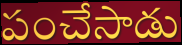
పంచేసాడు